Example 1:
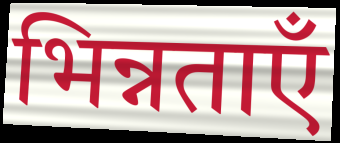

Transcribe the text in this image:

भिन्नताएँ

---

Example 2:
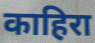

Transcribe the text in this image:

काहिरा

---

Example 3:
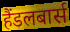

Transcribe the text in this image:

हैंडलबार्स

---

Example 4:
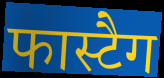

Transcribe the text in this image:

फास्टैग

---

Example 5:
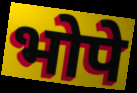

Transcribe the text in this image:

भोपे